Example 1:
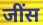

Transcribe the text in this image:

जींस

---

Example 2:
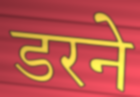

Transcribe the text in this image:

डरने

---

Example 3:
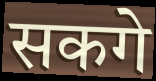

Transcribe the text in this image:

सकगे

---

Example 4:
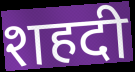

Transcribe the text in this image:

शहदी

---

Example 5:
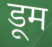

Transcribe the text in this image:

डूम